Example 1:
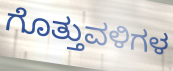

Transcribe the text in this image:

ಗೊತ್ತುವಳಿಗಳ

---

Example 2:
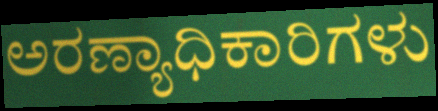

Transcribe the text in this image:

ಅರಣ್ಯಾಧಿಕಾರಿಗಳು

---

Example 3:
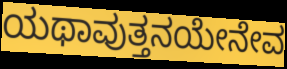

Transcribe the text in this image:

ಯಥಾವುತ್ತನಯೇನೇವ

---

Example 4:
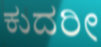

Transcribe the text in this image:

ಕುದರೀ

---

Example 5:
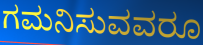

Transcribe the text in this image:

ಗಮನಿಸುವವರೂ